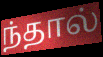
ந்தால்